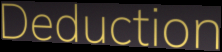
Deduction